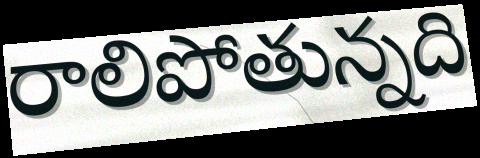
రాలిపోతున్నది